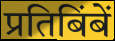
प्रतिबिंबें